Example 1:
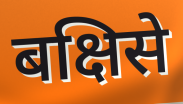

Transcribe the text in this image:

बक्षिसे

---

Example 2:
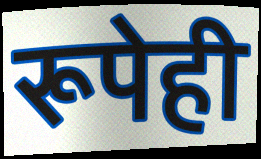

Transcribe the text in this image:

रूपेही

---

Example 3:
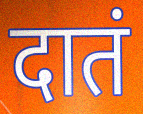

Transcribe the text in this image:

दातं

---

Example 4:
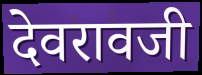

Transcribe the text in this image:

देवरावजी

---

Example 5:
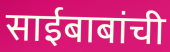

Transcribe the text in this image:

साईबाबांची